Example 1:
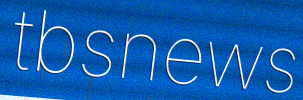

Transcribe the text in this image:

tbsnews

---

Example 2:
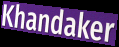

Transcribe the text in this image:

Khandaker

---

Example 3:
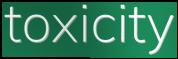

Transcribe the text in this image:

toxicity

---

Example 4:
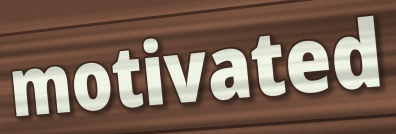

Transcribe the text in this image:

motivated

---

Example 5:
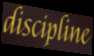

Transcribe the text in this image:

discipline